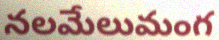
నలమేలుమంగ